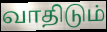
வாதிடும்